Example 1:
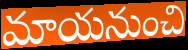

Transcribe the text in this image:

మాయనుంచి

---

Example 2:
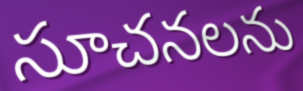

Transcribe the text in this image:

సూచనలను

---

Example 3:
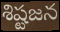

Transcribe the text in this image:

శిష్టజన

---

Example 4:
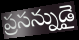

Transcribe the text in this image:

ప్రసన్నుడై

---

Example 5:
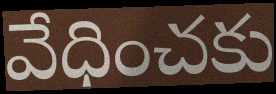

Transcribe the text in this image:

వేధించకు